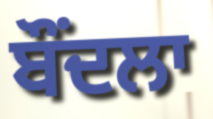
ਬੌਂਦਲਾ